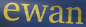
ewan